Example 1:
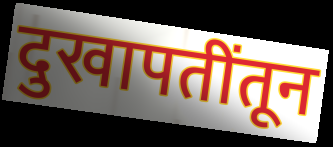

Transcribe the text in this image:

दुखापतींतून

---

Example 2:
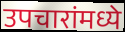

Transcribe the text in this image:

उपचारांमध्ये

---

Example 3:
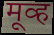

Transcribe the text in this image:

मूव्ह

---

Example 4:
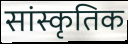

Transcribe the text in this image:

सांस्‍कृतिक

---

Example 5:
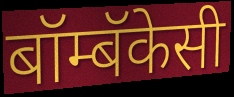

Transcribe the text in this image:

बॉम्बॅकेसी